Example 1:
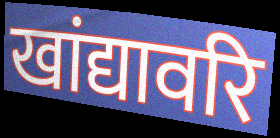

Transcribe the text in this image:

खांद्यावरि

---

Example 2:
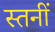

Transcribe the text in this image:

स्तनीं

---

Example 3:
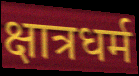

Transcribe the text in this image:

क्षात्रधर्म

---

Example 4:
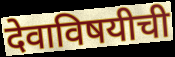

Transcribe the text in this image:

देवाविषयीची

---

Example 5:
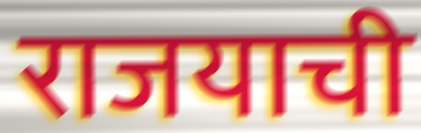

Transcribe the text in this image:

राजयाची